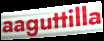
aaguttilla